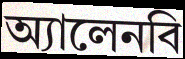
অ্যালেনবি